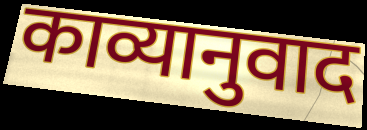
काव्यानुवाद